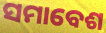
ସମାବେଶ